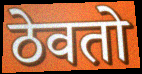
ठेवतो